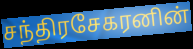
சந்திரசேகரனின்